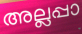
അല്ലപ്പാ